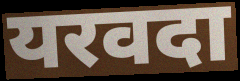
यरवदा